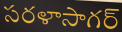
సరళాసాగర్